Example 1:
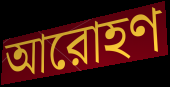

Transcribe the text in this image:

আরোহণ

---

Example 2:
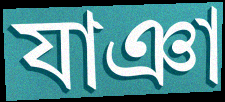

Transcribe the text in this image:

যাঞা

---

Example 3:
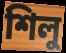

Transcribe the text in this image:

শিলু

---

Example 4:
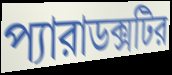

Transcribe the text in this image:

প্যারাডক্সটির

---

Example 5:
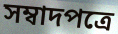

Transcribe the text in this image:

সম্বাদপত্রে